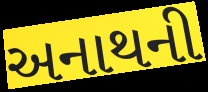
અનાથની